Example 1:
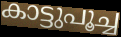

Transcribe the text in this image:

കാട്ടുപൂച്ച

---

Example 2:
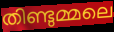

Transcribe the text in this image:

തിണ്ടുമ്മലെ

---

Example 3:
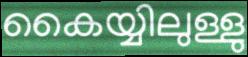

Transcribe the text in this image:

കൈയ്യിലുള്ളു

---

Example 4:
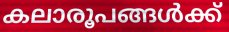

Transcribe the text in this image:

കലാരൂപങ്ങൾക്ക്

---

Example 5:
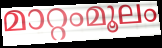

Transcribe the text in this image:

മാറ്റംമൂലം